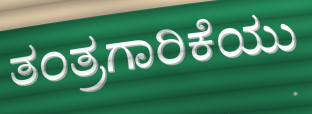
ತಂತ್ರಗಾರಿಕೆಯು